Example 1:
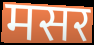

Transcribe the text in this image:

मसर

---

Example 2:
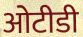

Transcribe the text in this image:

ओटीडी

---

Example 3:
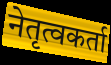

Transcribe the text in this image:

नेतृत्‍वकर्ता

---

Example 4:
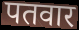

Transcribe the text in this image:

पतवार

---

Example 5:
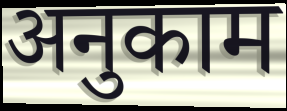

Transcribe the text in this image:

अनुकाम